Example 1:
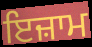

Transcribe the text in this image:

ਇਜ਼ਾਮ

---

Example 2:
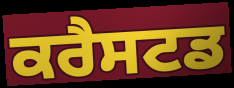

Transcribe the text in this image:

ਕਰੈਸਟਡ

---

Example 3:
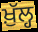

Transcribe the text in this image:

ਖ਼ੁੱਲ੍ਹ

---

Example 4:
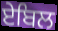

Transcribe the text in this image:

ਏਬਿਲ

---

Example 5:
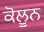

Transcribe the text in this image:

ਕੋਲੂਨ